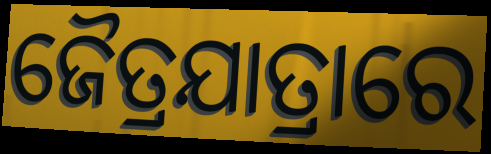
ଜୈତ୍ରଯାତ୍ରାରେ